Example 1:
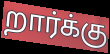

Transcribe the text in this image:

றார்க்கு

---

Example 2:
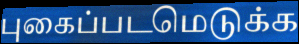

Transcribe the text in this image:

புகைப்படமெடுக்க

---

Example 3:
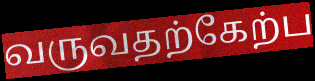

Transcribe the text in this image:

வருவதற்கேற்ப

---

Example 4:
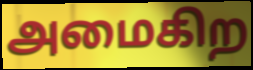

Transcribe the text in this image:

அமைகிற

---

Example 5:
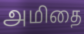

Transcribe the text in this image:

அமிதை